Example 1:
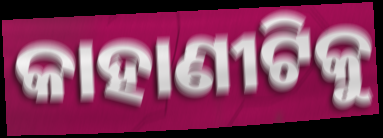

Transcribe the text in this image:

କାହାଣୀଟିକୁ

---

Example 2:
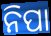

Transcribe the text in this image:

ନିପା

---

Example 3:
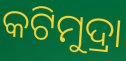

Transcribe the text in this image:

କଟିମୁଦ୍ରା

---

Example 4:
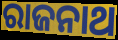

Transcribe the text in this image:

ରାଜନାଥ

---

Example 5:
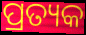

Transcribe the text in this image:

ପ୍ରତ୍ୟକ